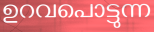
ഉറവപൊട്ടുന്ന